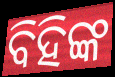
ବିହିଙ୍କ